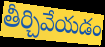
తీర్చివేయడం